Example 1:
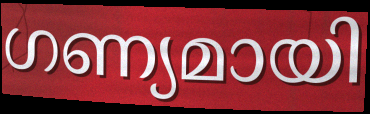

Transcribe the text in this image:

ഗണ്യമായി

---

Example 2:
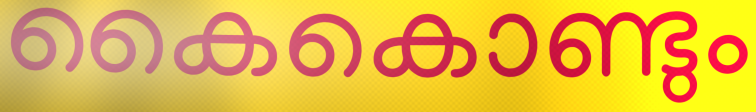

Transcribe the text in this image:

കൈകൊണ്ടും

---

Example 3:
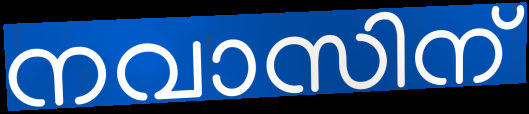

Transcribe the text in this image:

നവാസിന്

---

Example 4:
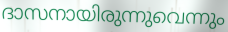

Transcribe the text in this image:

ദാസനായിരുന്നുവെന്നും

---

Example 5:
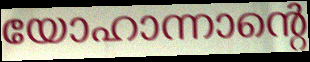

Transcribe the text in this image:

യോഹാന്നാന്റെ